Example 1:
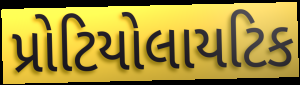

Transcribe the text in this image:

પ્રોટિયોલાયટિક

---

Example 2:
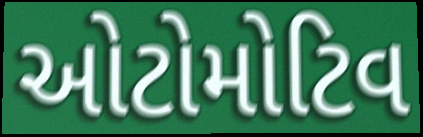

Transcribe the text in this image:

ઓટોમોટિવ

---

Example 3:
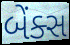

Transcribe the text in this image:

બેંક્સ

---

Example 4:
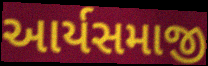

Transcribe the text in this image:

આર્યસમાજી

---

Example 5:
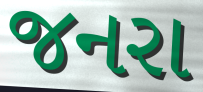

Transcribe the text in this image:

જનરા